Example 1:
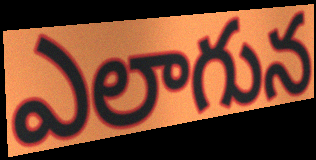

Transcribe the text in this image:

ఎలాగున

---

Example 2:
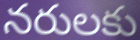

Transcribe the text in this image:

నరులకు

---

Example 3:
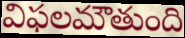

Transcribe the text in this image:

విఫలమౌతుంది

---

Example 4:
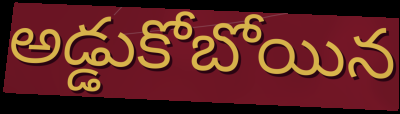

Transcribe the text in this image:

అడ్డుకోబోయిన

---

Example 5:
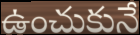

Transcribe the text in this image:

ఉంచుకునే